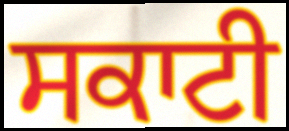
ਸਕਾਟੀ